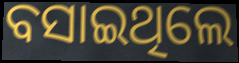
ବସାଇଥିଲେ